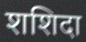
शशिदा